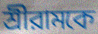
শ্রীরামকে